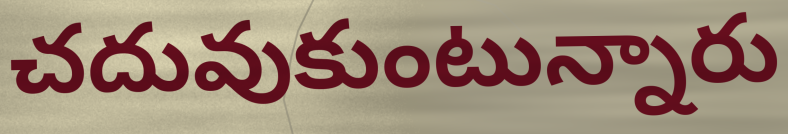
చదువుకుంటున్నారు